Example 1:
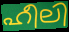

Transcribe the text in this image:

ഹീലി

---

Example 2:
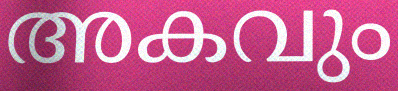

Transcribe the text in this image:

അകവും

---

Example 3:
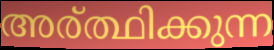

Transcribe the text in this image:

അര്ത്ഥിക്കുന്ന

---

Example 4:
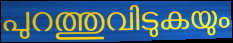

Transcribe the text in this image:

പുറത്തുവിടുകയും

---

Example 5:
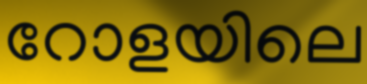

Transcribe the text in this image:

റോളയിലെ